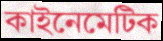
কাইনেমেটিক